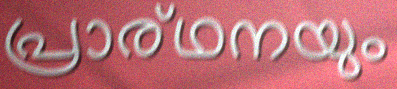
പ്രാര്ഥനയും